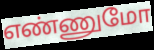
எண்ணுமோ